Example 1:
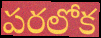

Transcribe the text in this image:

పరలోక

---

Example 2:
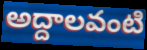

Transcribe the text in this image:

అద్దాలవంటి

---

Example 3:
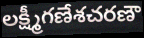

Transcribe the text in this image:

లక్ష్మీగణేశచరణౌ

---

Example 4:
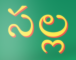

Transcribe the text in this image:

సల్ల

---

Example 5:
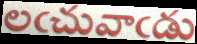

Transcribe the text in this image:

లఁచువాఁడు